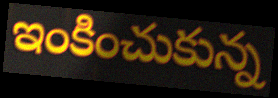
ఇంకించుకున్న